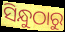
ସିନ୍ଧୁଠାରୁ